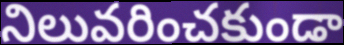
నిలువరించకుండా